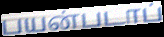
பயன்படாப்